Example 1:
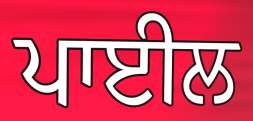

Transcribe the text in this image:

ਪਾਈਲ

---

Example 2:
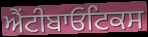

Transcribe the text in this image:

ਐਂਟੀਬਾਓਟਿਕਸ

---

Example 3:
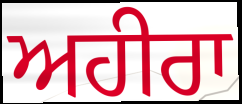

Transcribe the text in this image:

ਅਹੀਰਾ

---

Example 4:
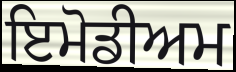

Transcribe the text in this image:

ਇਮੋਡੀਅਮ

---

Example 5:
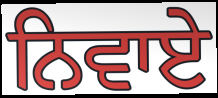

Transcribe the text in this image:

ਨਿਵਾਏ